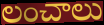
లంచాలు